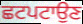
ਛਟਪਟਾਉਣ